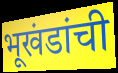
भूखंडांची